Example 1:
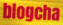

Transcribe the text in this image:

blogcha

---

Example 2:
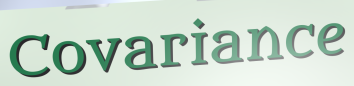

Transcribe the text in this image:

Covariance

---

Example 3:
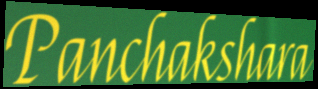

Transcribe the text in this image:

Panchakshara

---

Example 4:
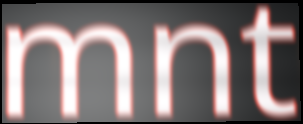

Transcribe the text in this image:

mnt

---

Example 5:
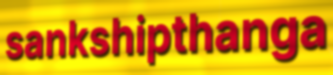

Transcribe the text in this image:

sankshipthanga